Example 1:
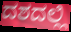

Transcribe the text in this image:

ದಶದಲ್ಲಿ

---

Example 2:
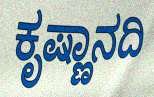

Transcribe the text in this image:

ಕೃಷ್ಣಾನದಿ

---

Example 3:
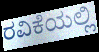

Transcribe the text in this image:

ರವಿಕೆಯಲ್ಲಿ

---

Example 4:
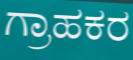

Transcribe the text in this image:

ಗ್ರಾಹಕರ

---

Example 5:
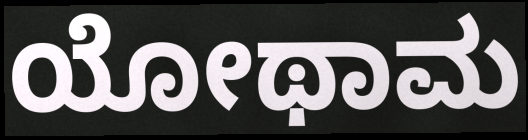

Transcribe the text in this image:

ಯೋಥಾಮ